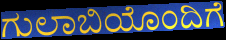
ಗುಲಾಬಿಯೊಂದಿಗೆ